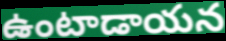
ఉంటాడాయన